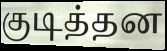
குடித்தன